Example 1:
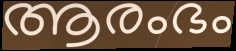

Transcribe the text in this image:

ആരംഭം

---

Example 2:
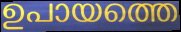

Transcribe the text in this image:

ഉപായത്തെ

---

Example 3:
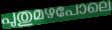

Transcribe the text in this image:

പുതുമഴപോലെ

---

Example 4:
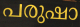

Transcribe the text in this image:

പരുഷാ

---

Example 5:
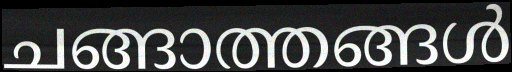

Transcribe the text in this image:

ചങ്ങാത്തങ്ങൾ